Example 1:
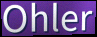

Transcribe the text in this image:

Ohler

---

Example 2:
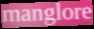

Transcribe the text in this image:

manglore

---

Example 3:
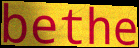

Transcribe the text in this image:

bethe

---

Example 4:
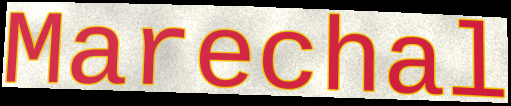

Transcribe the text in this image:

Marechal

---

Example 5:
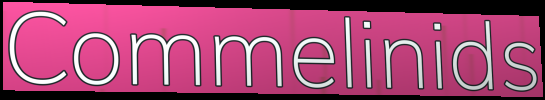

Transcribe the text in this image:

Commelinids